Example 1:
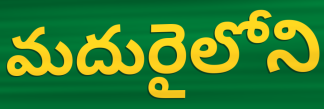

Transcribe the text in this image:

మదురైలోని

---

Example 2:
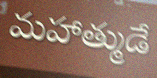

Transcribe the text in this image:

మహాత్ముడే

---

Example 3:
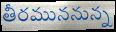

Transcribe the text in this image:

తీరముననున్న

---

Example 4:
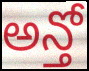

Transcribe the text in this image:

అన్తో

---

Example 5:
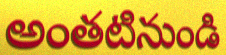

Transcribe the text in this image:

అంతటినుండి